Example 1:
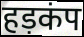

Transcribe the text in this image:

हड़कंप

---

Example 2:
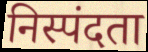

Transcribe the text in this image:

निस्पंदता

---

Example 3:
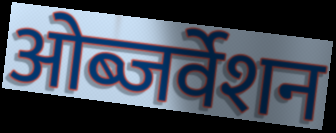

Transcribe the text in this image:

ओब्ज़र्वेशन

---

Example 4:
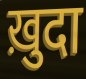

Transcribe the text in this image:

ख़ुदा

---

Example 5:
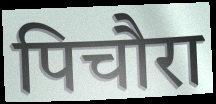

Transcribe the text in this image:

पिचौरा